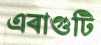
এৰাগুটি